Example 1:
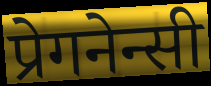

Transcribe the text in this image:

प्रेगनेन्सी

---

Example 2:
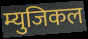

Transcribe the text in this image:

म्युजिकल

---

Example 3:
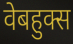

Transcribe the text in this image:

वेबहुक्स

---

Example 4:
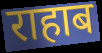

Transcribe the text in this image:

राहाब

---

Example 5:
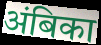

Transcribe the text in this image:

अंबिका